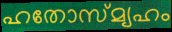
ഹതോസ്മ്യഹം